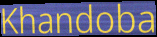
Khandoba